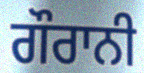
ਗੌਰਾਨੀ